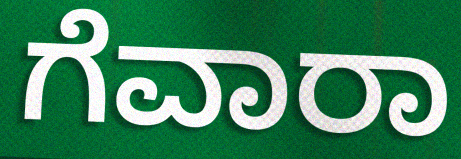
ಗೆವಾರಾ